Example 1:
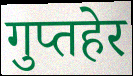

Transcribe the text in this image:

गुप्तहेर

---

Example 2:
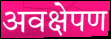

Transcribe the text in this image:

अवक्षेपण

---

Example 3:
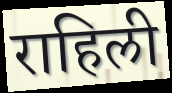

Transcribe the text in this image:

राहिली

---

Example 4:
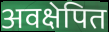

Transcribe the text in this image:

अवक्षेपित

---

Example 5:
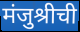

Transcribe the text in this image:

मंजुश्रीची